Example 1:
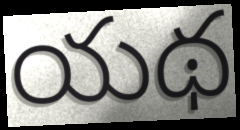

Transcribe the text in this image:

యథ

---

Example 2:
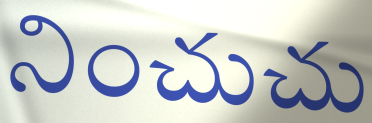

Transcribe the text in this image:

నించుచు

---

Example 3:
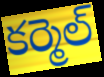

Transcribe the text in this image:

కర్మెల్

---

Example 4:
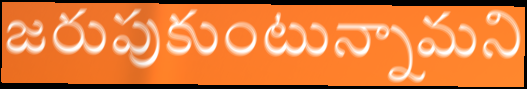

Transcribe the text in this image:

జరుపుకుంటున్నామని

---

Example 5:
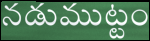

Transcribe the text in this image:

నడుముట్టం